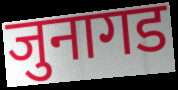
जुनागड